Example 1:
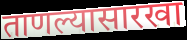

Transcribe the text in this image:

ताणल्यासारखा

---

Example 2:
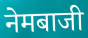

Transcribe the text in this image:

नेमबाजी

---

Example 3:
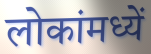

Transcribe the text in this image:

लोकांमध्यें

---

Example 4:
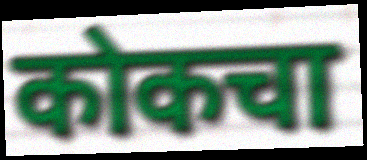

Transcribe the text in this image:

कोकचा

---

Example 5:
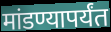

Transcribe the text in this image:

मांडण्यापर्यंत